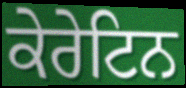
ਕੇਰੇਟਿਨ